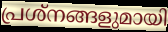
പ്രശ്നങ്ങളുമായി